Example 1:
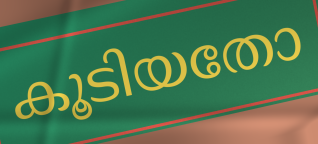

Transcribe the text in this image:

കൂടിയതോ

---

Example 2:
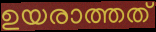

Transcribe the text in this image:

ഉയരാത്തത്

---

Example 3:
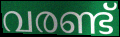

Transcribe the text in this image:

വരണ്ട്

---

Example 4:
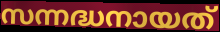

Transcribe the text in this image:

സന്നദ്ധനായത്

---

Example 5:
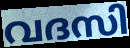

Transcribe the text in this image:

വദസി